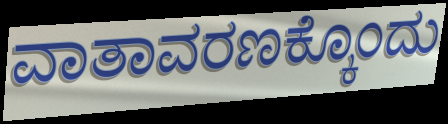
ವಾತಾವರಣಕ್ಕೊಂದು